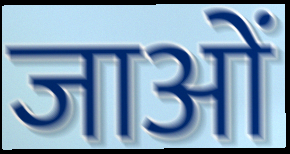
जाओं